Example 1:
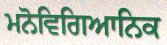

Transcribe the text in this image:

ਮਨੋਵਿਗਿਆਨਿਕ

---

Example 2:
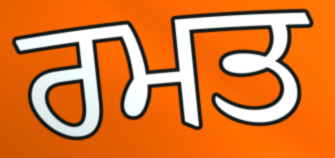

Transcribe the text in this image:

ਰਮਤ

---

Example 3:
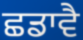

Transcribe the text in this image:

ਛਡਾਵੈ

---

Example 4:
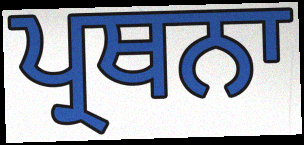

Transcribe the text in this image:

ਪ੍ਰਥਨਾ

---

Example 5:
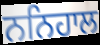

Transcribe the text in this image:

ਨਨਿਹਾਲ